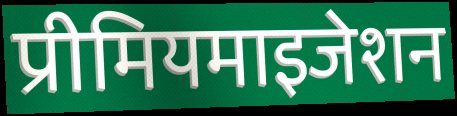
प्रीमियमाइजेशन